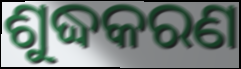
ଶୁଦ୍ଧକରଣ